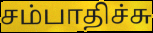
சம்பாதிச்சு